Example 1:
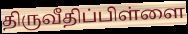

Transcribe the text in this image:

திருவீதிப்பிள்ளை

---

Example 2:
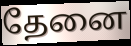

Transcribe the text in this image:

தேனை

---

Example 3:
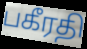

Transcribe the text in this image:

பகீரதி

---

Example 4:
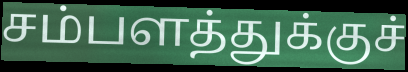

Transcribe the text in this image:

சம்பளத்துக்குச்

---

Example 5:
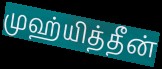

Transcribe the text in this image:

முஹ்யித்தீன்